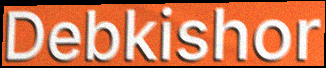
Debkishor